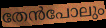
തേൻപോലും